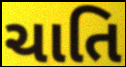
ચાતિ